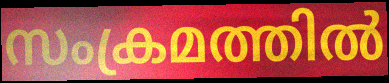
സംക്രമത്തിൽ